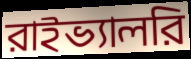
রাইভ্যালরি